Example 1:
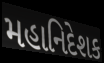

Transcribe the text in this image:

મહાનિદેશક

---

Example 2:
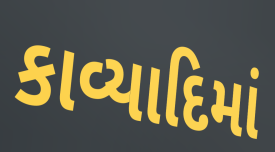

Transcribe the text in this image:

કાવ્યાદિમાં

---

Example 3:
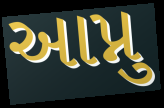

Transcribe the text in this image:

આપ્નુ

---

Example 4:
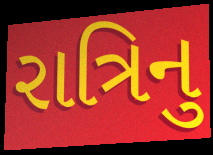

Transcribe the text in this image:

રાત્રિનુ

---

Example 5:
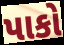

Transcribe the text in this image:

પાકો